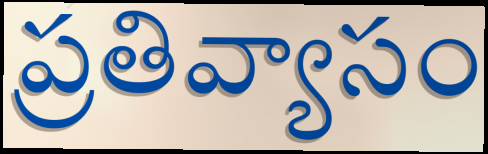
ప్రతివ్యాసం